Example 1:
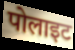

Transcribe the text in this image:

पोलाइट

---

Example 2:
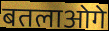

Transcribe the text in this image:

बतलाओगे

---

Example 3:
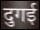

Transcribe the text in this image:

दुगई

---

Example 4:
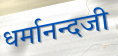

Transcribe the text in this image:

धर्मानन्दजी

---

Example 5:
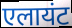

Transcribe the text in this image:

एलायंट